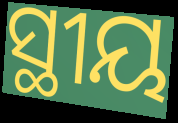
ସ୍ଥୀୟ